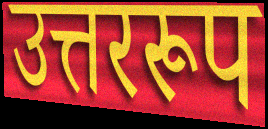
उत्तररूप